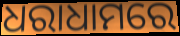
ଧରାଧାମରେ